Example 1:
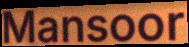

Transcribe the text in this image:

Mansoor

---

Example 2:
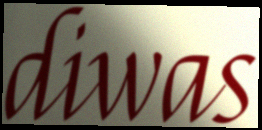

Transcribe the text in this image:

diwas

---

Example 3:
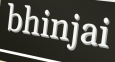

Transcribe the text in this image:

bhinjai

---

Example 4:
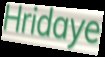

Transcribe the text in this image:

Hridaye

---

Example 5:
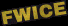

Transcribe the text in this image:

FWICE